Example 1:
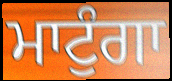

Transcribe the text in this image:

ਮਾਟੁੰਗਾ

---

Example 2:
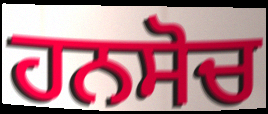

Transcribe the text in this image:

ਹਨਸੋਚ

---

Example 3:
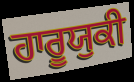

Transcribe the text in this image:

ਹਾਰੂਯੁਕੀ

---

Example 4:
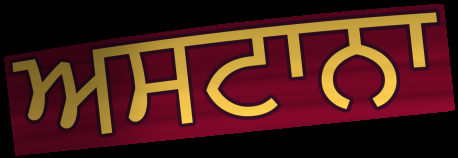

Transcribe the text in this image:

ਅਸਟਾਨਾ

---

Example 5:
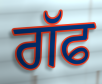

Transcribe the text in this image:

ਗੱਫ